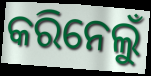
କରିନେଲୁଁ